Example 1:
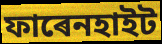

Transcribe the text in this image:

ফাৰেনহাইট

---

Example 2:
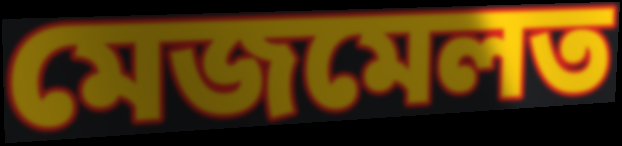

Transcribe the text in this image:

মেজমেলত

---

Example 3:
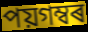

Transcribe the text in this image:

পয়গম্বৰ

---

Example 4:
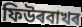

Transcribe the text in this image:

ফিউৰবাখৰ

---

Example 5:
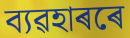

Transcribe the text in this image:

ব্যৱহাৰৰে